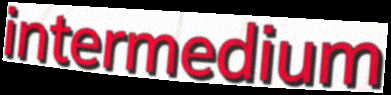
intermedium